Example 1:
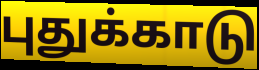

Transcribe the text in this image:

புதுக்காடு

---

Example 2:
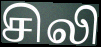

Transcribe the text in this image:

சிலி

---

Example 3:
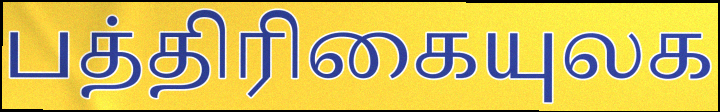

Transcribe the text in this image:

பத்திரிகையுலக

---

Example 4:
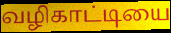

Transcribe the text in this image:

வழிகாட்டியை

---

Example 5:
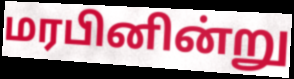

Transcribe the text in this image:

மரபினின்று